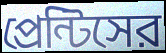
প্রেন্টিসের